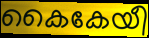
കൈകേയീ